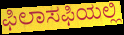
ಫಿಲಾಸಫಿಯಲ್ಲಿ